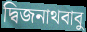
দ্বিজনাথবাবু